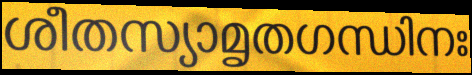
ശീതസ്യാമൃതഗന്ധിനഃ